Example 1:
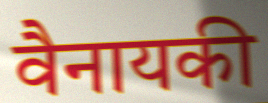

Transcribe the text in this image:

वैनायकी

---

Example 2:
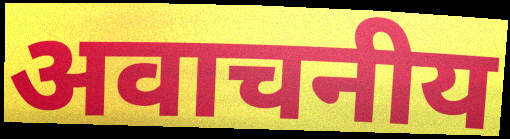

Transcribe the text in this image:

अवाचनीय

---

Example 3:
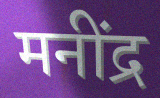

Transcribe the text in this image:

मनींद्र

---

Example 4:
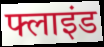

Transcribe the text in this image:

फ्लाइंड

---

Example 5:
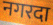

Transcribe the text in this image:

नगरदा